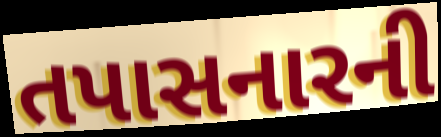
તપાસનારની